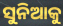
ସୁନିଆକୁ